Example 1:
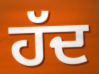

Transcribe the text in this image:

ਹੱਦ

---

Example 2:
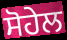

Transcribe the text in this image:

ਸੋਹੇਲ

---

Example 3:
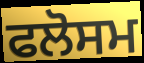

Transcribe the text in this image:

ਫਲੋਸਮ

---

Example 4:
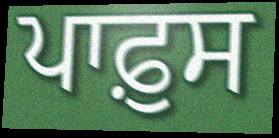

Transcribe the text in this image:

ਪਾਫ਼ੁਸ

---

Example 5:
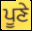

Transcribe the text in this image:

ਪੂਣੇ